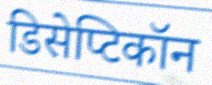
डिसेप्टिकॉन